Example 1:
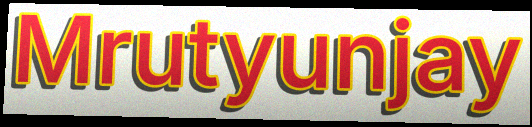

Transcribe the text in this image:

Mrutyunjay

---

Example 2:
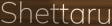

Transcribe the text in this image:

Shettaru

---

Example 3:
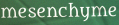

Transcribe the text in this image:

mesenchyme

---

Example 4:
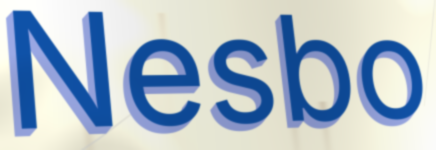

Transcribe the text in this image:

Nesbo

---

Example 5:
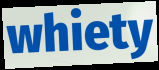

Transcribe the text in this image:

whiety